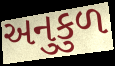
અનુકુળ